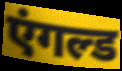
एंगल्ड